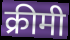
क्रीमी